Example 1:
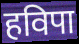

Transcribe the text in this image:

हविपा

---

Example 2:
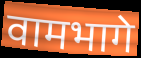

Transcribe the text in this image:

वामभागे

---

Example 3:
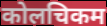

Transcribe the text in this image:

कोलचिकम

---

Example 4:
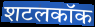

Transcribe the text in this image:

शटलकॉक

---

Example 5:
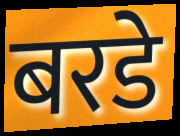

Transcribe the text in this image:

बरडे